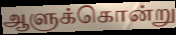
ஆளுக்கொன்று